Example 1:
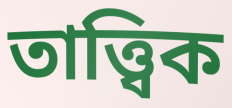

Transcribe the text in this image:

তাত্ত্বিক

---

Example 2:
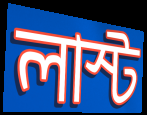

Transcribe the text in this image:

লাস্ট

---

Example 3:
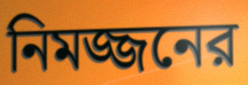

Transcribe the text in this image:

নিমজ্জনের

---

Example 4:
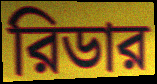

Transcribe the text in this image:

রিডার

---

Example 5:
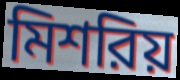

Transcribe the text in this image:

মিশরিয়